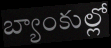
బ్యాంకుల్లో